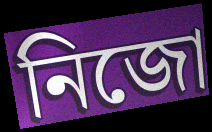
নিজো